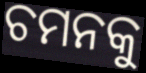
ଚମନକୁ